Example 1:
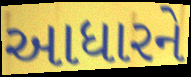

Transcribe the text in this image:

આધારને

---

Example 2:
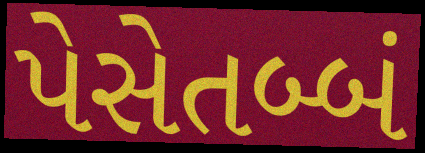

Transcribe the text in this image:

પેસેતબ્બં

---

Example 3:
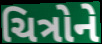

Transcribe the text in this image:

ચિત્રોને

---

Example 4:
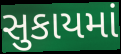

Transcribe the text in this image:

સુકાયમાં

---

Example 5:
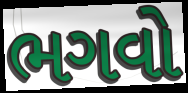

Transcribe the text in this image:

ભગવો